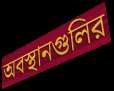
অবস্থানগুলির